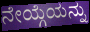
ನೇಯ್ಗೆಯನ್ನು